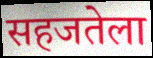
सहजतेला